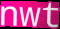
nwt